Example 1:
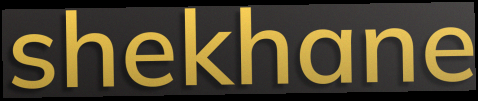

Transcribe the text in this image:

shekhane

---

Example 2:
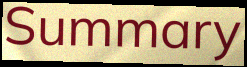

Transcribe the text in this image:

Summary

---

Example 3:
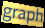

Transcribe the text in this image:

graph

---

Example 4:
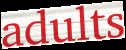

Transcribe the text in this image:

adults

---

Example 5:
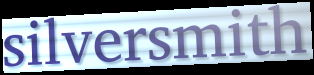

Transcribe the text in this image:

silversmith